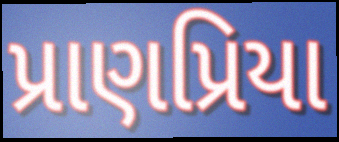
પ્રાણપ્રિયા